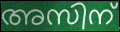
അസിന്